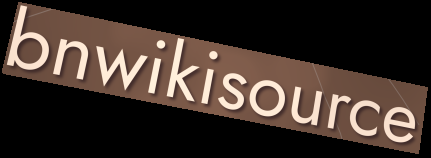
bnwikisource